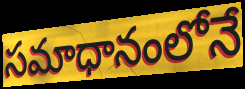
సమాధానంలోనే